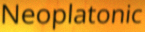
Neoplatonic